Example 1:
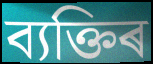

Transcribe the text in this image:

ব্যক্তিৰ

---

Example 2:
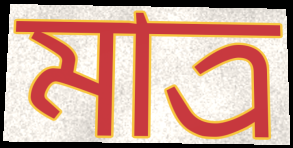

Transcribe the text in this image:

মাত্ৰ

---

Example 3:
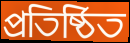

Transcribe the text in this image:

প্ৰতিষ্ঠিত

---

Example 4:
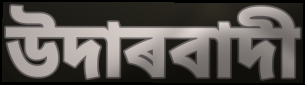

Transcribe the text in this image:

উদাৰবাদী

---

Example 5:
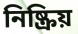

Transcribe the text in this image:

নিষ্ক্ৰিয়